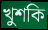
খুশকি